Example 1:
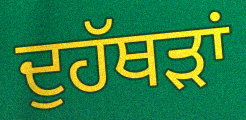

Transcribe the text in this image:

ਦੁਹੱਥੜਾਂ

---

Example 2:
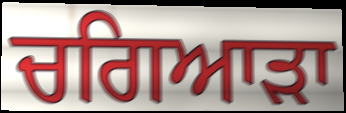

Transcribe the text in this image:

ਚਗਿਆੜਾ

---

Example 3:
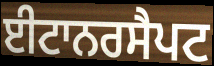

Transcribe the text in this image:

ਈਟਾਨਰਸੈਪਟ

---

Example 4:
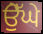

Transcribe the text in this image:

ਉੇੱਘੇ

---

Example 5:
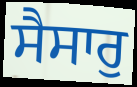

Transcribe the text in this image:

ਸੈਸਾਰੁ